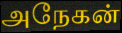
அநேகன்